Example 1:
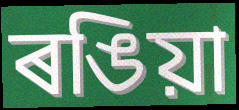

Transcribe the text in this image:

ৰঙিয়া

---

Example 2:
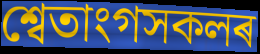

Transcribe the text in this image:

শ্বেতাংগসকলৰ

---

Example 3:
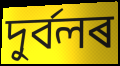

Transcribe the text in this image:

দুৰ্বলৰ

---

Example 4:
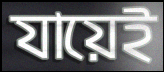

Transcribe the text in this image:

যায়েই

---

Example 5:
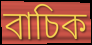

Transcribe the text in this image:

বাচিক